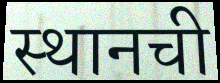
स्थानची